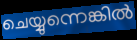
ചെയ്യുന്നെങ്കിൽ